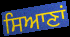
ਸਿਆਣਾਂ